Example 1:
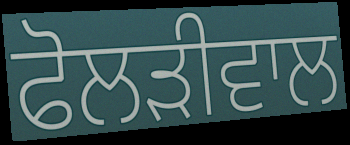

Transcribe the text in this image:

ਫੋਲੜੀਵਾਲ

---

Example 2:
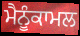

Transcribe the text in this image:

ਮੈਨੂੰਕਾਮਲ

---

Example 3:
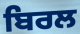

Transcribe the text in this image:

ਬਿਰਲ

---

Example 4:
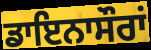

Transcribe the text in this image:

ਡਾਇਨਾਸੌਰਾਂ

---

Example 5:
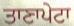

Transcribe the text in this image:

ਤਾਣਾਪੇਟਾ